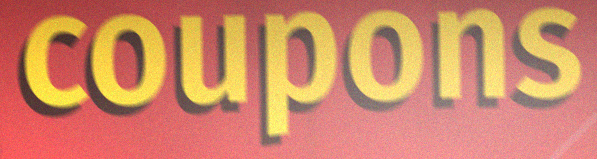
coupons